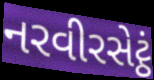
નરવીરસેટ્ઠં